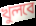
খুলবে